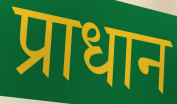
प्राधान